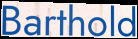
Barthold